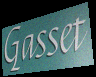
Gasset